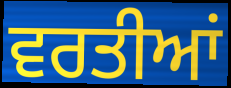
ਵਰਤੀਆਂ